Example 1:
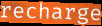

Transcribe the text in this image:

recharge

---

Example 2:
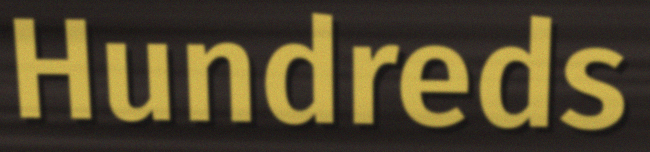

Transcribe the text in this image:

Hundreds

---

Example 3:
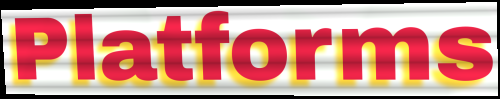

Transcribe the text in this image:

Platforms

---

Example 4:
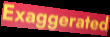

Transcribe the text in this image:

Exaggerated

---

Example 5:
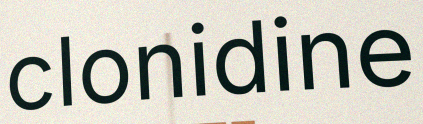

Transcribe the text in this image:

clonidine